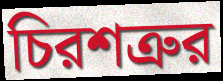
চিরশত্রুর